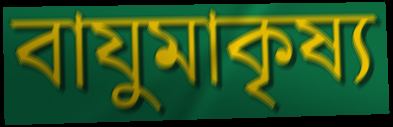
বাযুমাকৃষ্য